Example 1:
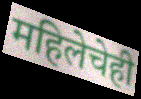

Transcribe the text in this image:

महिलेचेही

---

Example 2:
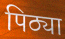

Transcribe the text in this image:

पिठ्या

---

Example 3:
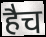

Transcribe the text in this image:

हैच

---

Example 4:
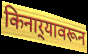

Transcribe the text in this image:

किनार्यावरून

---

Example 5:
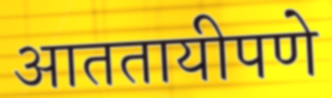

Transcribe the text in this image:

आततायीपणे